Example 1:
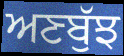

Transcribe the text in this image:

ਅਣਬੁੱਝ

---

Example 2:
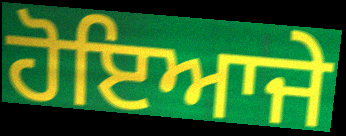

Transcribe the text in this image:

ਹੋਇਆਜੇ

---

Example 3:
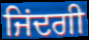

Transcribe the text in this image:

ਜਿਂਦਗੀ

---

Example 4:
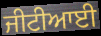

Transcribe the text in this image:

ਜੀਟੀਆਈ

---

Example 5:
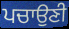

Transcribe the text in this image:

ਪਚਾਉਣੀ